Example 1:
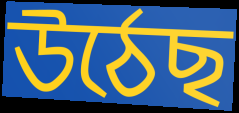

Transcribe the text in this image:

উঠেছ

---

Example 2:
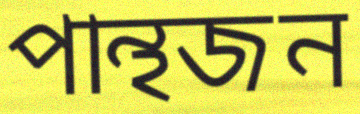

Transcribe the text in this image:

পান্থজন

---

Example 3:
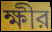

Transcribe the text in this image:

ক্ষীর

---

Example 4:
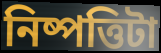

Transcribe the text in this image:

নিষ্পত্তিটা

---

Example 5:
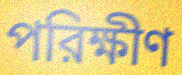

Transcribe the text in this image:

পরিক্ষীণ